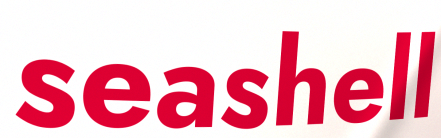
seashell